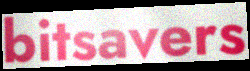
bitsavers